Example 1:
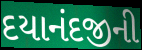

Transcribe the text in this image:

દયાનંદજીની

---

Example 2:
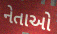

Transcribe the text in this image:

નેતાઓ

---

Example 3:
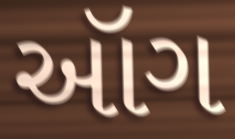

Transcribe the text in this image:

ઑગ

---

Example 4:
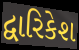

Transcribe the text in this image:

દ્વારિકેશ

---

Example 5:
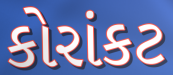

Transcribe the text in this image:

કોરાંકટ